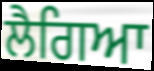
ਲੈਗਿਆ